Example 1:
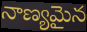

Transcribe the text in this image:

నాణ్యమైన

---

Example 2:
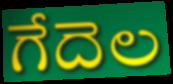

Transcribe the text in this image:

గేదెల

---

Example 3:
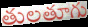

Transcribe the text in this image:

తులతూగు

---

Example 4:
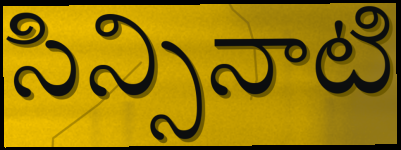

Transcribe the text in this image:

సిన్సినాటి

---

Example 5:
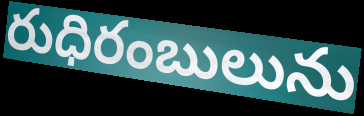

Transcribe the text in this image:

రుధిరంబులును